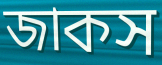
জাকস